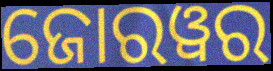
ଜୋରୱର